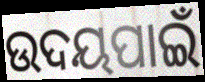
ଉଦୟପାଇଁ